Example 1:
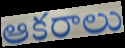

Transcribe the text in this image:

ఆకరాలు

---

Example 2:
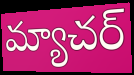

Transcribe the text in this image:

మ్యాచర్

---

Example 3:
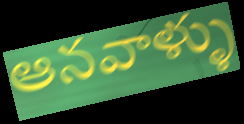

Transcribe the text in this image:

ఆనవాళ్ళు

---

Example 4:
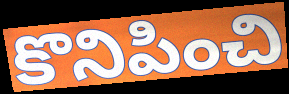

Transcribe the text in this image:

కొనిపించి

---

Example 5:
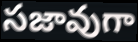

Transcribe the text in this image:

సజావుగా